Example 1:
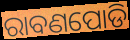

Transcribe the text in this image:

ରାବଣପୋଡି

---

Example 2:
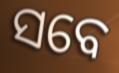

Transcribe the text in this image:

ସବେ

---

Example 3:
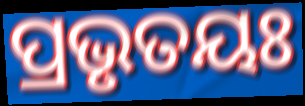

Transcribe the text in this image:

ପ୍ରଭୃତୟଃ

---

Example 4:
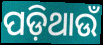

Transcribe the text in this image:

ପଡ଼ିଥାଉଁ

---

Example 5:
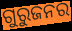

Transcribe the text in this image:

ଗୁରୁଜନର